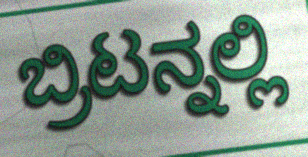
ಬ್ರಿಟನ್ನಲ್ಲಿ